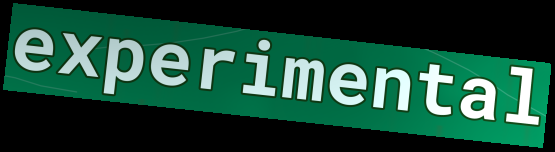
experimental